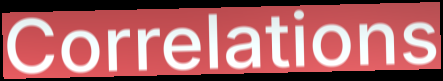
Correlations